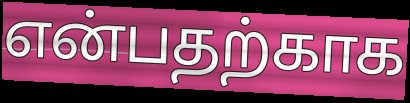
என்பதற்காக